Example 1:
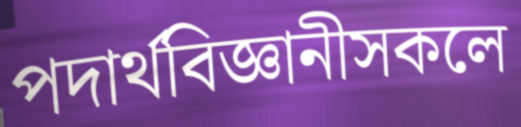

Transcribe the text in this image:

পদাৰ্থবিজ্ঞানীসকলে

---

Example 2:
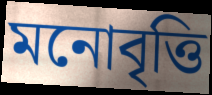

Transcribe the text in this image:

মনোবৃত্তি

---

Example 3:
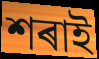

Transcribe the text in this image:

শৰাই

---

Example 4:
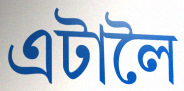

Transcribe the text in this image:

এটালৈ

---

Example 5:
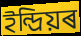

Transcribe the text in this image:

ইন্দ্ৰিয়ৰ